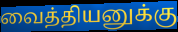
வைத்தியனுக்கு